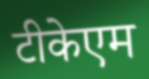
टीकेएम